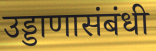
उड्डाणासंबंधी